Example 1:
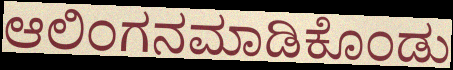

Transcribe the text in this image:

ಆಲಿಂಗನಮಾಡಿಕೊಂಡು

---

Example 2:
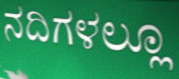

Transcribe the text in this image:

ನದಿಗಳಲ್ಲೂ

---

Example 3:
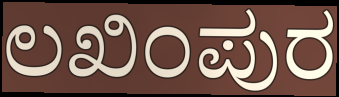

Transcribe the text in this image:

ಲಖಿಂಪುರ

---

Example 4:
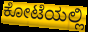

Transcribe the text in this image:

ಕೋಟೆಯಲ್ಲಿ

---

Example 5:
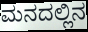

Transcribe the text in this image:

ಮನದಲ್ಲಿನ